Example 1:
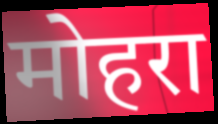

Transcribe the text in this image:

मोहरा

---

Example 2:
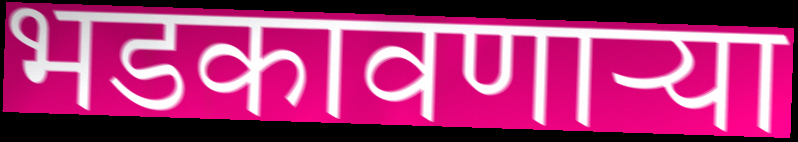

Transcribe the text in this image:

भडकावणाऱ्या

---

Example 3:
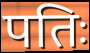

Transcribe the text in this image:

पतिः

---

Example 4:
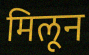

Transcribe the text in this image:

मिलून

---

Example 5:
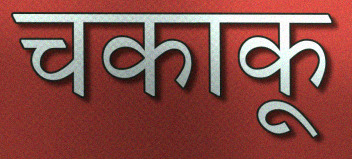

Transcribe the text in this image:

चकाकू